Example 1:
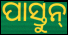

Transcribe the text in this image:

ପାସ୍ତୁନ୍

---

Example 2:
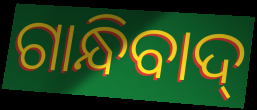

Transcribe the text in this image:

ଗାନ୍ଧିବାଦ୍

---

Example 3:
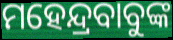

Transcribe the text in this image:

ମହେନ୍ଦ୍ରବାବୁଙ୍କ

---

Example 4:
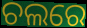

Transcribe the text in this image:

ଚଲରେ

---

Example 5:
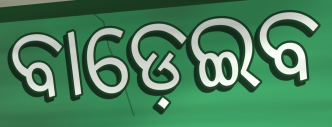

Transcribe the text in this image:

ବାଡ଼େଇବ